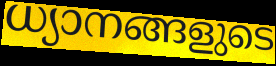
ധ്യാനങ്ങളുടെ